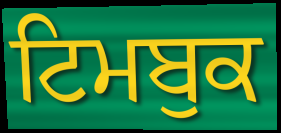
ਟਿਮਬੁਕ